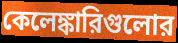
কেলেঙ্কারিগুলোর